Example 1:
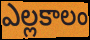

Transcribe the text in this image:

ఎల్లకాలం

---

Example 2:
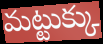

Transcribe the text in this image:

మట్టుక్కు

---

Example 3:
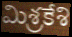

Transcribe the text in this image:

మిశ్రకేశి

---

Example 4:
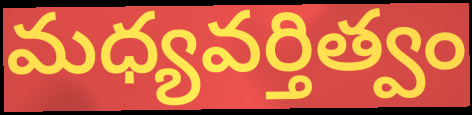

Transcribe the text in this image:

మధ్యవర్తిత్వం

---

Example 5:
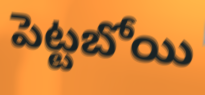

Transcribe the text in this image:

పెట్టబోయి